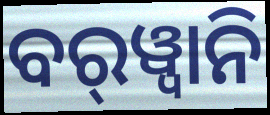
ବର୍‍ୱ୍ୱାନି